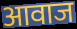
आवाज